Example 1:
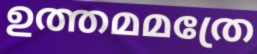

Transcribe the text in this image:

ഉത്തമമത്രേ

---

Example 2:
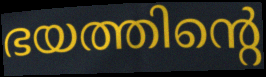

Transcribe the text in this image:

ഭയത്തിന്റെ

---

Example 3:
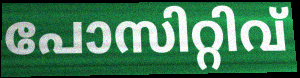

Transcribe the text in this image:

പോസിറ്റിവ്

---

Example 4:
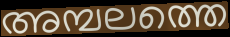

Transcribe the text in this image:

അമ്പലത്തെ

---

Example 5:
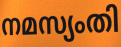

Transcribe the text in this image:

നമസ്യംതി